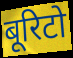
बूरिटो